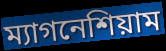
ম্যাগনেশিয়াম